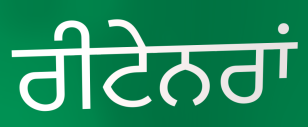
ਰੀਟੇਨਰਾਂ